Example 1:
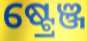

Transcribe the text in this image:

ଷ୍ଟ୍ରେଞ୍ଜ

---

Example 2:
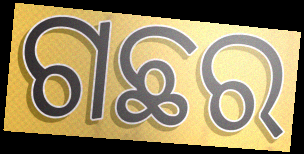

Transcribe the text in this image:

ଗଛର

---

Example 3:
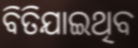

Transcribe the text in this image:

ବିତିଯାଇଥିବ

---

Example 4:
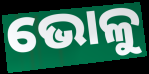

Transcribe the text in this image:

ଭୋଳୁ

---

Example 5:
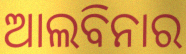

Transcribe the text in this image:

ଆଲବିନାର